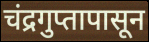
चंद्रगुप्तापासून